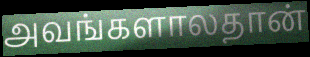
அவங்களாலதான்